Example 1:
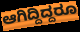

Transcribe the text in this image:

ಆಗಿದ್ದಿದ್ದರೂ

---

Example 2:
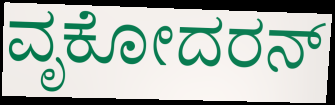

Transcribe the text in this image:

ವೃಕೋದರನ್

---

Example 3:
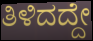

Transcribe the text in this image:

ತಿಳಿದದ್ದೇ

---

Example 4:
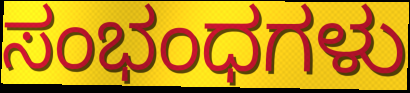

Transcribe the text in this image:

ಸಂಭಂಧಗಳು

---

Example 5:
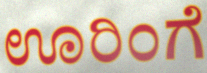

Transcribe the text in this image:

ಊರಿಂಗೆ